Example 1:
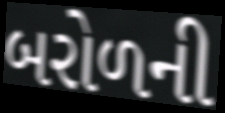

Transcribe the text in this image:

બરોળની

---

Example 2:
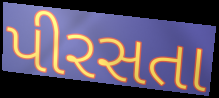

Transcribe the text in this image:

પીરસતા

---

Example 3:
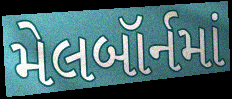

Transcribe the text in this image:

મેલબૉર્નમાં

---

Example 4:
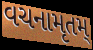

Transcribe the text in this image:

વચનામૃતમ્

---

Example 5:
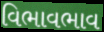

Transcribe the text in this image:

વિભાવભાવ